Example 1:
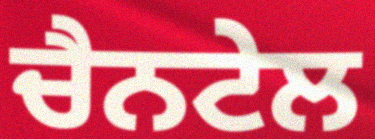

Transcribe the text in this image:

ਚੈਨਟੇਲ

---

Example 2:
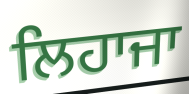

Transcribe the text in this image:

ਲਿਹਾਜਾ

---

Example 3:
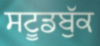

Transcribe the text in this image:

ਸਟੂਡਬੁੱਕ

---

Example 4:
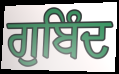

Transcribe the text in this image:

ਗੁਬਿੰਦ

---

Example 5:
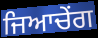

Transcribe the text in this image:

ਜਿਆਚੇਂਗ